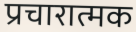
प्रचारात्मक